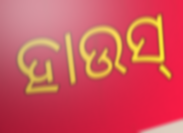
ହାଉସ୍